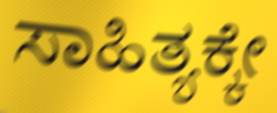
ಸಾಹಿತ್ಯಕ್ಕೇ